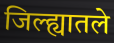
जिल्ह्यातले